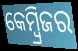
କେମ୍ବ୍ରିଜର